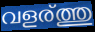
വളര്ത്തു